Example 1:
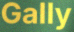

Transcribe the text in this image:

Gally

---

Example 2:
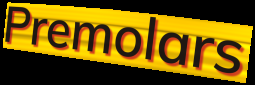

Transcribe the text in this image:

Premolars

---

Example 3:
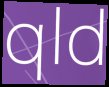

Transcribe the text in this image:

qld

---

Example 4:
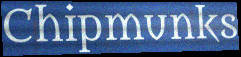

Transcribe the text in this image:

Chipmunks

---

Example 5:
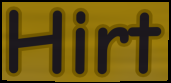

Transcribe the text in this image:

Hirt